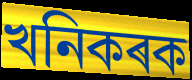
খনিকৰক